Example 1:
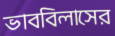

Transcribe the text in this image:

ভাববিলাসের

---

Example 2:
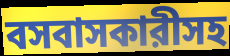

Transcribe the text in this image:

বসবাসকারীসহ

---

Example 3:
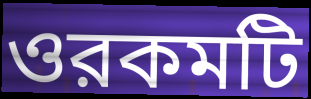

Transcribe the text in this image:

ওরকমটি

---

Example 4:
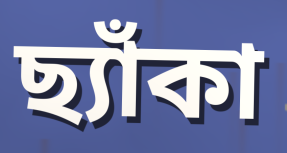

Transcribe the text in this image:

ছ্যাঁকা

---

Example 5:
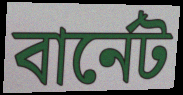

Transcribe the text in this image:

বার্নেট